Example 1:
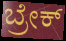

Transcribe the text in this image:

ಬ್ರೇಕ್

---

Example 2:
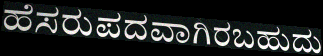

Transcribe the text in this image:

ಹೆಸರುಪದವಾಗಿರಬಹುದು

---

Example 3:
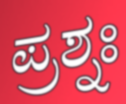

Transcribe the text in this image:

ಪ್ರಶ್ನಃ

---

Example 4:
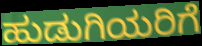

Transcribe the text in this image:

ಹುಡುಗಿಯರಿಗೆ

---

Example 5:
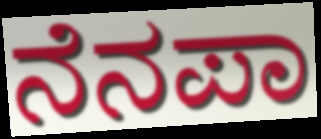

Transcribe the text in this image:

ನೆನಪಾ